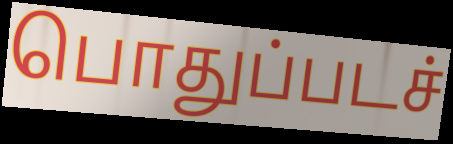
பொதுப்படச்